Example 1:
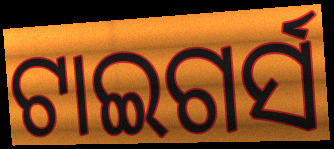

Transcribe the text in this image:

ଟାଇଗର୍ସ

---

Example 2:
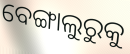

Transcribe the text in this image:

ବେଙ୍ଗାଲୁରୁକୁ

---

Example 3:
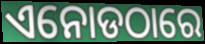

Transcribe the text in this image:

ଏନୋଡଠାରେ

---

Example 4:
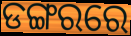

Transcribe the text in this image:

ଡଙ୍ଗରରେ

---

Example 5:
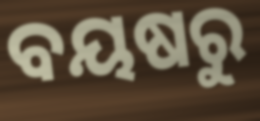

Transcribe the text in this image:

ବୟଷରୁ